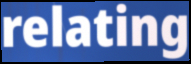
relating